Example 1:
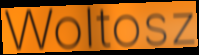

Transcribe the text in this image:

Woltosz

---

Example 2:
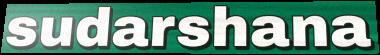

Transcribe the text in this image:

sudarshana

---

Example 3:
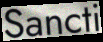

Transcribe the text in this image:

Sancti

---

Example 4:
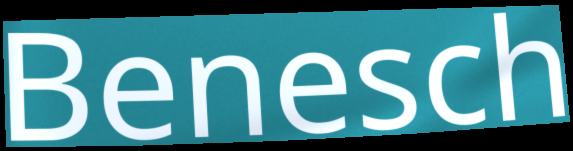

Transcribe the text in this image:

Benesch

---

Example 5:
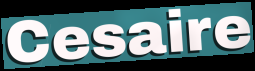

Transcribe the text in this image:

Cesaire